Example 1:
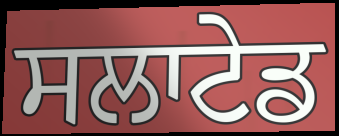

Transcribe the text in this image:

ਸਲਾਟੇਡ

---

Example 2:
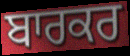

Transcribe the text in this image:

ਬਾਰਕਰ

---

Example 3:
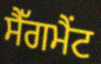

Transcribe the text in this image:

ਸੈੱਗਮੈਂਟ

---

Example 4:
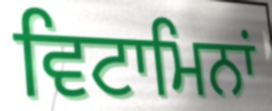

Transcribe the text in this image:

ਵਿਟਾਮਿਨਾਂ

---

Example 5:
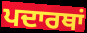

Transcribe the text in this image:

ਪਦਾਰਥਾਂ